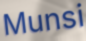
Munsi